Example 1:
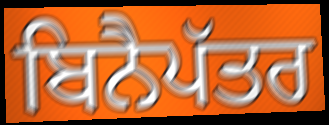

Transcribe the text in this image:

ਬਿਨੈਪੱਤਰ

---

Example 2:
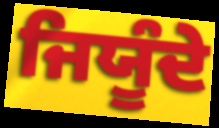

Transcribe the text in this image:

ਜਿਯੂੰਦੇ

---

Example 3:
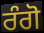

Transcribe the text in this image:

ਰੰਗੋ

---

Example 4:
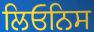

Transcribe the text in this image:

ਲਿਓਨਿਸ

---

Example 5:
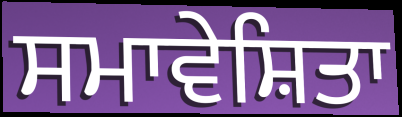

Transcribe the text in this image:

ਸਮਾਵੇਸ਼ਿਤਾ